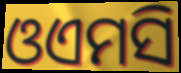
ଓଏମସି